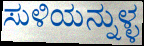
ಸುಳಿಯನ್ನುಳ್ಳ